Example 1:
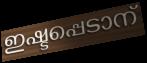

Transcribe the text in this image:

ഇഷ്ടപ്പെടാന്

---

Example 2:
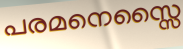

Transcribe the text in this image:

പരമനെസ്സൈ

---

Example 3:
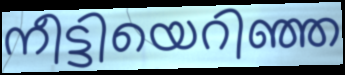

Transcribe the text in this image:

നീട്ടിയെറിഞ്ഞ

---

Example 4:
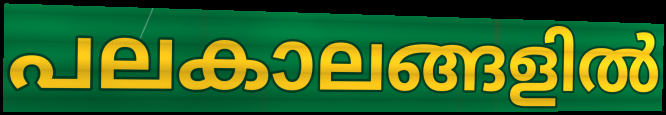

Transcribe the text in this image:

പലകാലങ്ങളിൽ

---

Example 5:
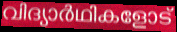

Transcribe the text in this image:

വിദ്യാർഥികളോട്